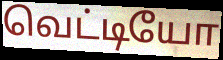
வெட்டியோ